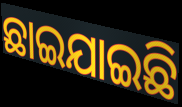
ଛାଇଯାଇଛି